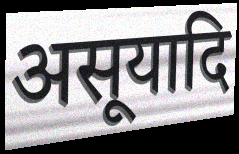
असूयादि